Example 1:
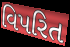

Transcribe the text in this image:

વિપરિત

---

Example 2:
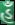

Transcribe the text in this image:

હઁ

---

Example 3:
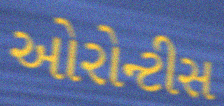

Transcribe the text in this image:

ઓરોન્ટીસ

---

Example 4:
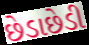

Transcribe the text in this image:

છેડાછેડી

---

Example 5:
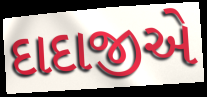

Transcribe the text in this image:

દાદાજીએ